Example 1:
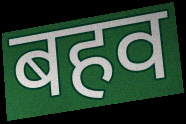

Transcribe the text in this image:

बहव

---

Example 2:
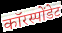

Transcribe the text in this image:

कॉरस्पोंडेट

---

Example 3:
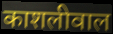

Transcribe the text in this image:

काशलीवाल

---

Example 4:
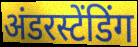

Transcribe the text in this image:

अंडरस्टेंडिंग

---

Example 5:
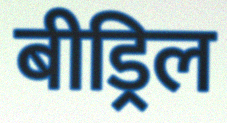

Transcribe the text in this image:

बीड्रिल